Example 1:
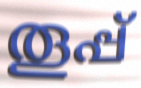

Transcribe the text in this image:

തൂപ്പ്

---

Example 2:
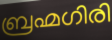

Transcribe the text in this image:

ബ്രഹ്മഗിരി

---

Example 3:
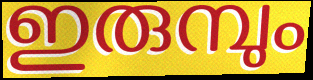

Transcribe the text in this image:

ഇരുമ്പും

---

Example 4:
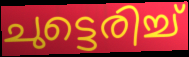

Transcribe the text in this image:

ചുട്ടെരിച്ച്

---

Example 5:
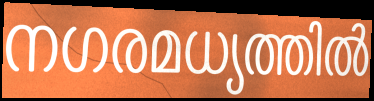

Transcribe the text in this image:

നഗരമധ്യത്തിൽ